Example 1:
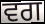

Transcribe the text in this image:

ਵਗ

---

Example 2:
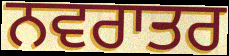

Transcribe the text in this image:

ਨਵਰਾਤਰ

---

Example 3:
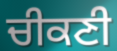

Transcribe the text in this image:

ਚੀਕਣੀ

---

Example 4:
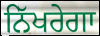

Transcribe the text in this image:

ਨਿੱਖਰੇਗਾ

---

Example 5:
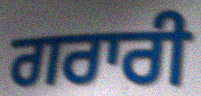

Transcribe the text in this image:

ਗਰਾਰੀ